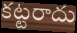
కట్టరాదు